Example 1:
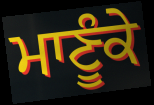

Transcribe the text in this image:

ਮਾਣੂੰਕੇ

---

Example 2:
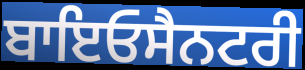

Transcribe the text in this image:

ਬਾਇਓਸੈਨਟਰੀ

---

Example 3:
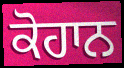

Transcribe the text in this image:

ਕੋਹਾਨ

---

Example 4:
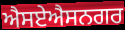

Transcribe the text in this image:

ਐਸਏਐਸਨਗਰ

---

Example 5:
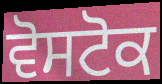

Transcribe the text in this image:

ਵੋਸਟੋਕ